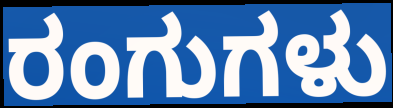
ರಂಗುಗಳು